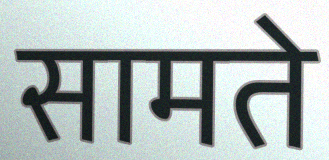
सामते